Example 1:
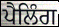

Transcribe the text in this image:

ਪੈਲਿੰਗ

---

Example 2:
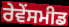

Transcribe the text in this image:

ਰੇਵੇਂਸਮੀਡ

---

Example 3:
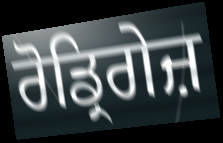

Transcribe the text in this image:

ਰੋਡ੍ਰਿਗੇਜ਼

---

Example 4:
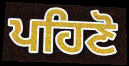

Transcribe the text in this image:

ਪਹਿਣੋ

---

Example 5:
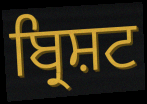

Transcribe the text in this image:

ਬ੍ਰਿਸ਼ਟ